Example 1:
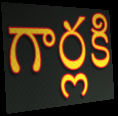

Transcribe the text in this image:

గార్లకి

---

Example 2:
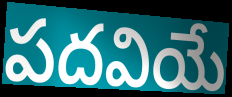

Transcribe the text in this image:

పదవియే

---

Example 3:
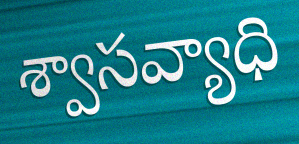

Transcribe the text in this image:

శ్వాసవ్యాధి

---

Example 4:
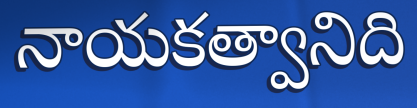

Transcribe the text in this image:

నాయకత్వానిది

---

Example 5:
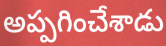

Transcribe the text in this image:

అప్పగించేశాడు